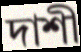
দাশী